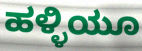
ಹಳ್ಳಿಯೂ